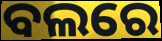
ବଲରେ